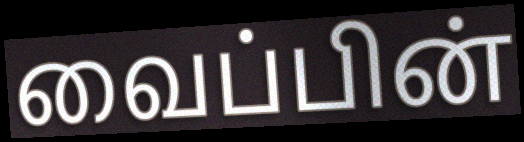
வைப்பின்